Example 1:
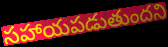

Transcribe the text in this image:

సహాయపడుతుందని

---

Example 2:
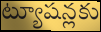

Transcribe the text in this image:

ట్యూషన్లకు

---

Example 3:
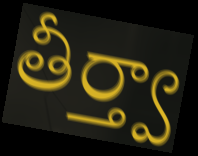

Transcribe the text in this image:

తీర్త్వా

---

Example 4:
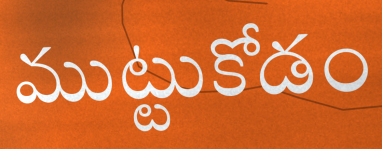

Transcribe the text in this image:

ముట్టుకోడం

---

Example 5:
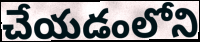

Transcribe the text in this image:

చేయడంలోని